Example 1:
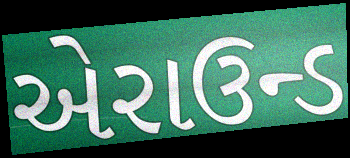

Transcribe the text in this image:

એરાઉન્ડ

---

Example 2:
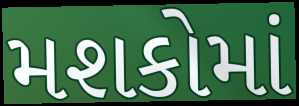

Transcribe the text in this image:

મશકોમાં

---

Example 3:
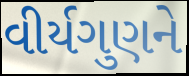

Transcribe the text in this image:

વીર્યગુણને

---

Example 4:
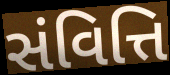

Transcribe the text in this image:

સંવિત્તિ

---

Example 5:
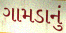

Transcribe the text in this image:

ગામડાનું